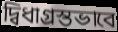
দ্বিধাগ্রস্তভাবে